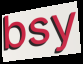
bsy